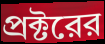
প্রক্টরের